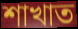
শাখাত